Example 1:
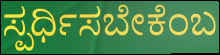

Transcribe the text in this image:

ಸ್ಪರ್ಧಿಸಬೇಕೆಂಬ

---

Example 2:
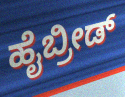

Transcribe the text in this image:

ಹೈಬ್ರೀಡ್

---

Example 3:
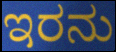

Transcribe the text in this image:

ಇರನು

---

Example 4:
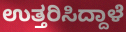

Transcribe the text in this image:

ಉತ್ತರಿಸಿದ್ದಾಳೆ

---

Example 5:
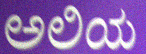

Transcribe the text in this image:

ಅಲಿಯ